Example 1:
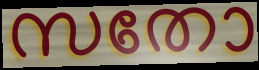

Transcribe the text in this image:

സതോ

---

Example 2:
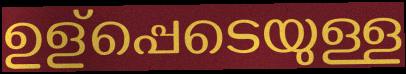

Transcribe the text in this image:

ഉള്പ്പെടെയുള്ള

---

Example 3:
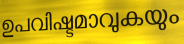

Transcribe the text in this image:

ഉപവിഷ്ടമാവുകയും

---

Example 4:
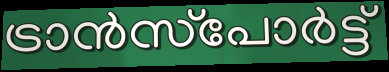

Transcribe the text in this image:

ട്രാൻസ്‌പോർട്ട്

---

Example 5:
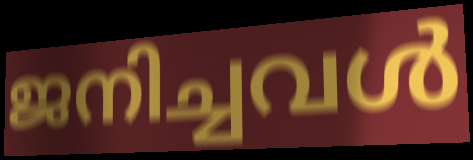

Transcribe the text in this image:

ജനിച്ചവൾ